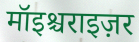
मॉइश्चराइज़र